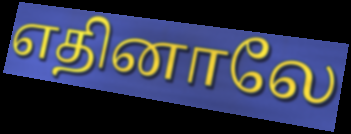
எதினாலே